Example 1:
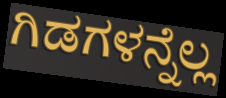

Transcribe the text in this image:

ಗಿಡಗಳನ್ನೆಲ್ಲ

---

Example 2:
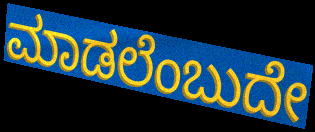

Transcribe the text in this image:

ಮಾಡಲೆಂಬುದೇ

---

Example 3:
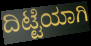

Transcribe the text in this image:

ದಿಟ್ಟೆಯಾಗಿ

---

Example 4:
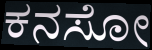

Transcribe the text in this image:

ಕನಸೋ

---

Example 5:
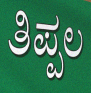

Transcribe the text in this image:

ತಿಪ್ಪಲ